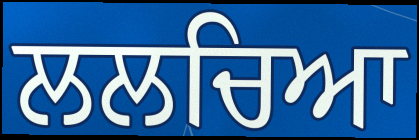
ਲਲਚਿਆ